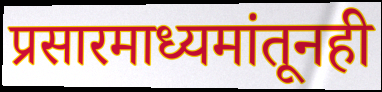
प्रसारमाध्यमांतूनही